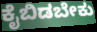
ಕೈಬಿಡಬೇಕು